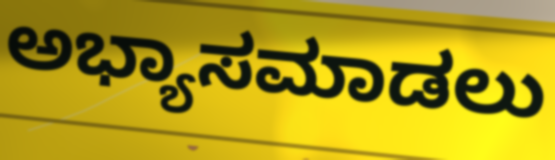
ಅಭ್ಯಾಸಮಾಡಲು